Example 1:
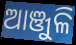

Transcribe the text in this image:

ଆଞ୍ଜୁଳି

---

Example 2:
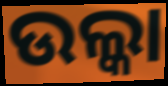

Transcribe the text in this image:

ଉଲ୍କା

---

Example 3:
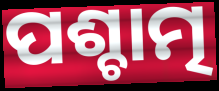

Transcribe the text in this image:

ପଶ୍ଚାତ୍ମ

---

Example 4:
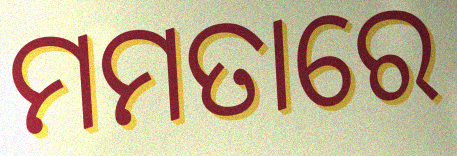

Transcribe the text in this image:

ମମତାରେ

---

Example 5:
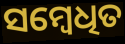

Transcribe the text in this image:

ସମ୍ବେଧିତ